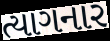
ત્યાગનાર